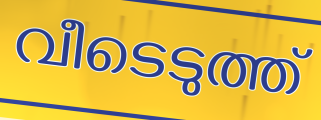
വീടെടുത്ത്